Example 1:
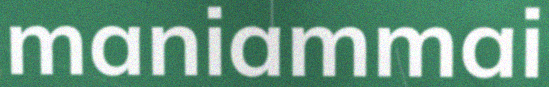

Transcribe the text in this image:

maniammai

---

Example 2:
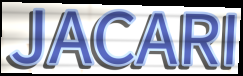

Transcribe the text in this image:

JACARI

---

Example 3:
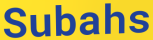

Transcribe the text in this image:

Subahs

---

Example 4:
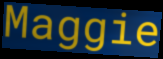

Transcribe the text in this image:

Maggie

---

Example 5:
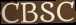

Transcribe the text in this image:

CBSC